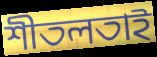
শীতলতাই